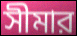
সীমার